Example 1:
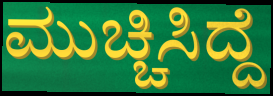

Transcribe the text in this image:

ಮುಚ್ಚಿಸಿದ್ದೆ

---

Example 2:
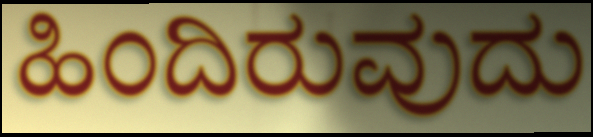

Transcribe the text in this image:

ಹಿಂದಿರುವುದು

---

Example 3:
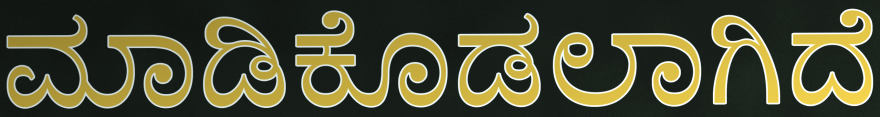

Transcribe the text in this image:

ಮಾಡಿಕೊಡಲಾಗಿದೆ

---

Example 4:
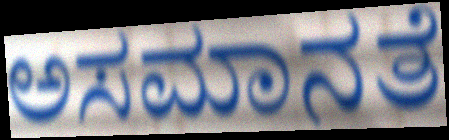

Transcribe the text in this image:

ಅಸಮಾನತೆ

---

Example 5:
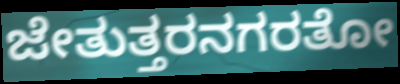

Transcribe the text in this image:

ಜೇತುತ್ತರನಗರತೋ